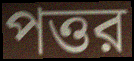
পত্তর